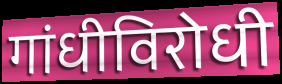
गांधीविरोधी